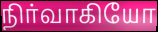
நிர்வாகியோ